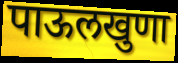
पाऊलखुणा